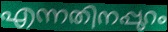
എന്നതിനപ്പുറം